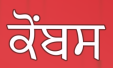
ਕੋਂਬਸ